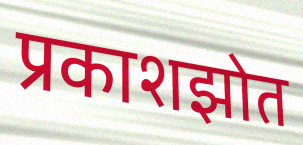
प्रकाशझोत